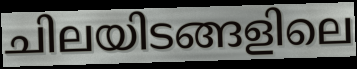
ചിലയിടങ്ങളിലെ